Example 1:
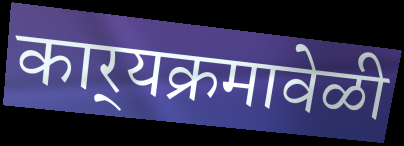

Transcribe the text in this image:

कार्यक्रमावेळी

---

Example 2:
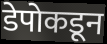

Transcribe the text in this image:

डेपोकडून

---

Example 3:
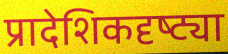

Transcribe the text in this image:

प्रादेशिकदृष्ट्या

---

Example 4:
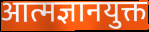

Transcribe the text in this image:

आत्मज्ञानयुक्त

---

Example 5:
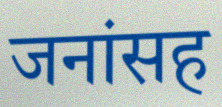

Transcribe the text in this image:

जनांसह